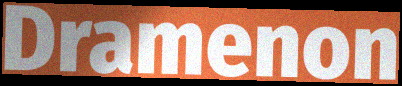
Dramenon